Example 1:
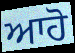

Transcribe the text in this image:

ਆਹੋ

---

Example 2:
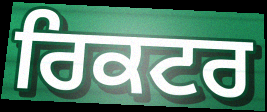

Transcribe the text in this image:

ਰਿਕਟਰ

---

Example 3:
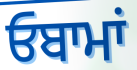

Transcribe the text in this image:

ਓਬਾਮਾਂ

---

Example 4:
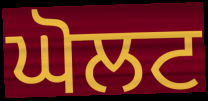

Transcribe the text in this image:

ਘੋਲਟ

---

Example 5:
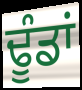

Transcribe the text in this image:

ਢੂੰਡਾਂ